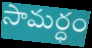
సామర్ధం